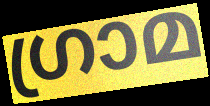
ഗ്രാമ